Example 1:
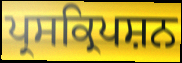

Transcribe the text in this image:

ਪ੍ਰਸਕ੍ਰਿਪਸ਼ਨ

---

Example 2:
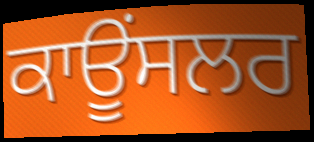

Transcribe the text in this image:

ਕਾਊਂਸਲਰ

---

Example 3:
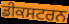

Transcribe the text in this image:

ਡੀਕਸਟਰਨ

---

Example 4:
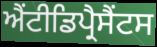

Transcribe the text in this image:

ਐਂਟੀਡਿਪ੍ਰੈਸੈਂਟਸ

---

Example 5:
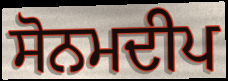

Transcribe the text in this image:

ਸੋਨਮਦੀਪ